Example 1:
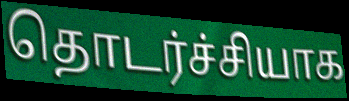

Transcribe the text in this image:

தொடர்ச்சியாக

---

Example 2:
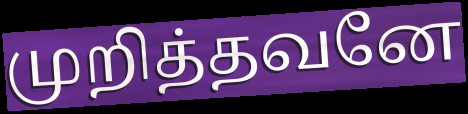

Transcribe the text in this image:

முறித்தவனே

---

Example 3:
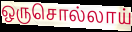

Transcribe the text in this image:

ஒருசொல்லாய்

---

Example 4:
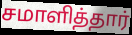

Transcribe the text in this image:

சமாளித்தார்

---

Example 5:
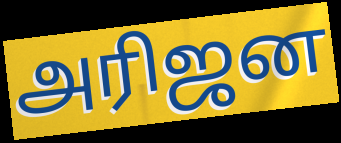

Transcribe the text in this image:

அரிஜன